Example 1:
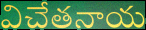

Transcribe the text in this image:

విచేతనాయ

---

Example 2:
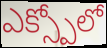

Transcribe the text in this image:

ఎక్స్పోలో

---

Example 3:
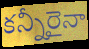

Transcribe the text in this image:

కన్నీరైనా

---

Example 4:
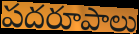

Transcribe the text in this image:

పదరూపాలు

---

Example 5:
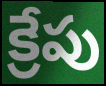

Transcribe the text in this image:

క్రేపు